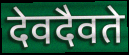
देवदैवते